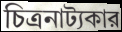
চিত্রনাট্যকার